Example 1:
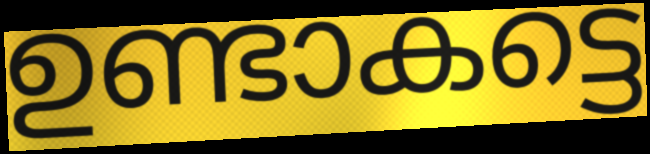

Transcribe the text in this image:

ഉണ്ടാകട്ടെ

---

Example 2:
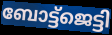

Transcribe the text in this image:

ബോട്ട്ജെട്ടി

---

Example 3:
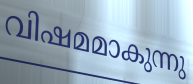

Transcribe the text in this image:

വിഷമമാകുന്നു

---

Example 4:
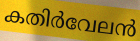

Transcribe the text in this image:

കതിർവേലൻ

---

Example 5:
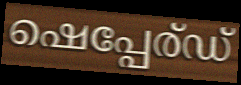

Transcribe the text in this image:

ഷെപ്പേര്ഡ്